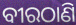
ବୀରଠାଣି